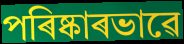
পৰিষ্কাৰভাৱে